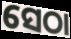
ସେଠା